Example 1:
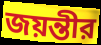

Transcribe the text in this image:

জয়ন্তীর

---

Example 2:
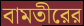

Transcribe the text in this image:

বামতীরের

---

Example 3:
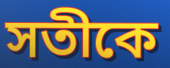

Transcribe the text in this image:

সতীকে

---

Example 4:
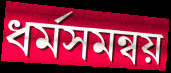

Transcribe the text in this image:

ধর্মসমন্বয়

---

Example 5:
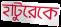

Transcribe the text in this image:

হাটুরেকে